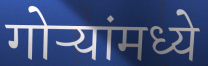
गोऱ्यांमध्ये